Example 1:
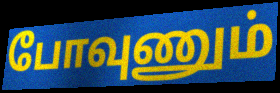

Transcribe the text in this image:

போவுணும்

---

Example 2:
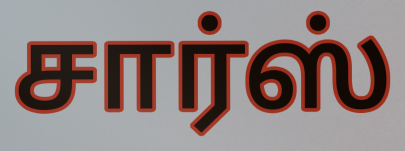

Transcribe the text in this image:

சார்ஸ்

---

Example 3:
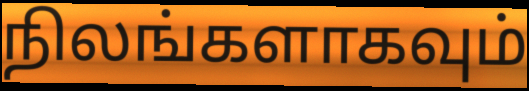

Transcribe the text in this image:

நிலங்களாகவும்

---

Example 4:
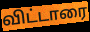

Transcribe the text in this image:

விட்டாரை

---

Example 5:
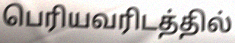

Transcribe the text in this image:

பெரியவரிடத்தில்